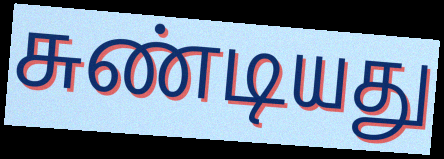
சுண்டியது